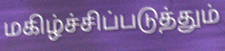
மகிழ்ச்சிப்படுத்தும்